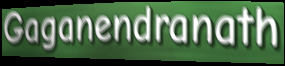
Gaganendranath